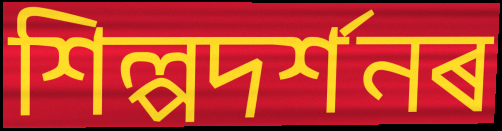
শিল্পদৰ্শনৰ